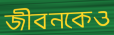
জীবনকেও